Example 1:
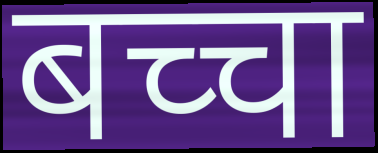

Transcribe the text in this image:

बच्चा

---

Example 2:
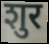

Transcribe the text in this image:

शुर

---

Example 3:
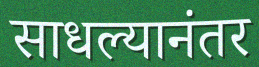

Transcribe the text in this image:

साधल्यानंतर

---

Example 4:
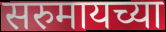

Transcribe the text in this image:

सरुमायच्या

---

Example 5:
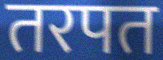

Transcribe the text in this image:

तरपत